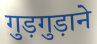
गुड़गुड़ाने